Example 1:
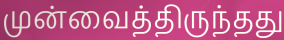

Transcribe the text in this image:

முன்வைத்திருந்தது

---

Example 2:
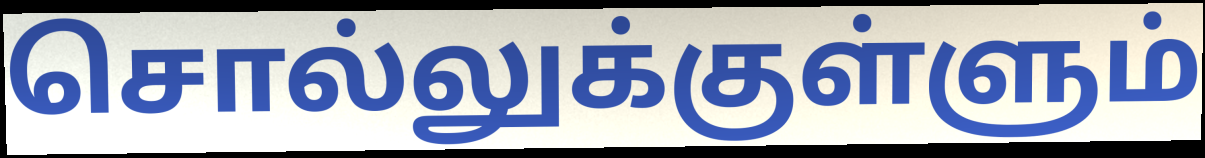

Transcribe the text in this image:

சொல்லுக்குள்ளும்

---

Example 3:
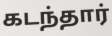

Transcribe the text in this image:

கடந்தார்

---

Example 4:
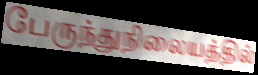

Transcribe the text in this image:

பேருந்துநிலையத்தில்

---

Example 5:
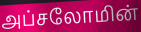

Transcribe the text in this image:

அப்சலோமின்